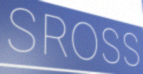
SROSS